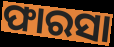
ଫାରସା